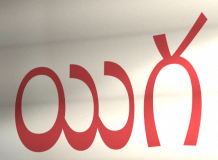
యిగ